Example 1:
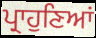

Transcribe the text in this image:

ਪ੍ਰਾਹੁਣਿਆਂ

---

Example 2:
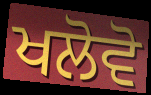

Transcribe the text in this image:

ਖਲੋਵੋ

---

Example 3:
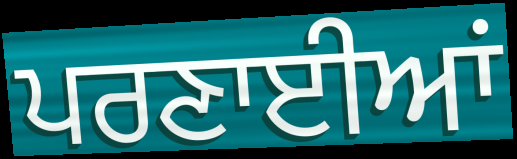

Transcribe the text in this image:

ਪਰਣਾਈਆਂ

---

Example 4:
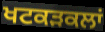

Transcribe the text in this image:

ਖਟਕੜਕਲਾਂ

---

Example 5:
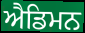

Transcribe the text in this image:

ਐਡਿਮਨ